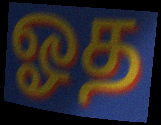
ஓத